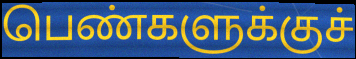
பெண்களுக்குச்